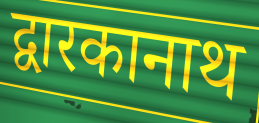
द्वारकानाथ